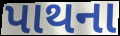
પાથના